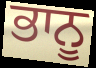
ਭਾਨੂ